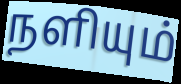
நளியும்